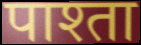
पाश्ता